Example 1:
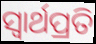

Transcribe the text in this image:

ସ୍ୱାର୍ଥପ୍ରତି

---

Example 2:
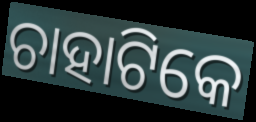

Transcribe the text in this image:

ଚାହାଟିକେ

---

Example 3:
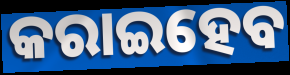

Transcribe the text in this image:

କରାଇହେବ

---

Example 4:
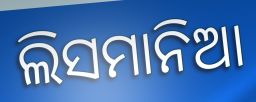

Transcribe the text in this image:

ଲିସମାନିଆ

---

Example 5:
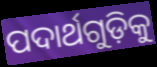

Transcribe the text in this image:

ପଦାର୍ଥଗୁଡ଼ିକୁ